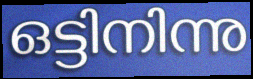
ഒട്ടിനിന്നു